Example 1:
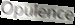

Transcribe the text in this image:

Opulence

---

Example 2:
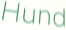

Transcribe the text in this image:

Hund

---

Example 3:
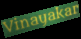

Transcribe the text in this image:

Vinayakar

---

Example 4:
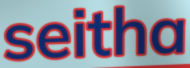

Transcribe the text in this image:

seitha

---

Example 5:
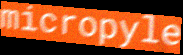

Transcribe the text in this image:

micropyle